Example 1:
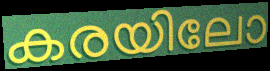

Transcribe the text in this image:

കരയിലോ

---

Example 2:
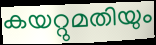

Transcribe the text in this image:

കയറ്റുമതിയും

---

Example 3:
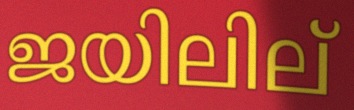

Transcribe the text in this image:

ജയിലില്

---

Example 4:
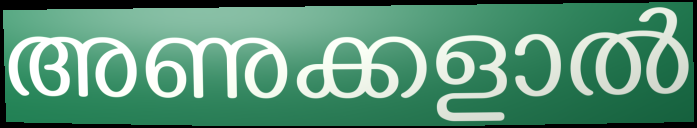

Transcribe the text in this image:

അണുക്കളാൽ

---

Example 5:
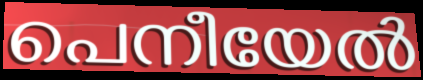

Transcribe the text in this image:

പെനീയേൽ